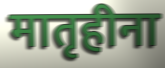
मातृहीना